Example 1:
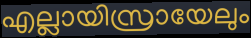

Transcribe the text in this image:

എല്ലായിസ്രായേലും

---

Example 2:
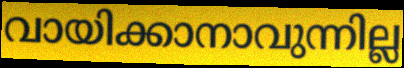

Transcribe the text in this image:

വായിക്കാനാവുന്നില്ല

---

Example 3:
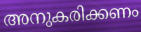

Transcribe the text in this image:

അനുകരിക്കണം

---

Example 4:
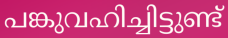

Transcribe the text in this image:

പങ്കുവഹിച്ചിട്ടുണ്ട്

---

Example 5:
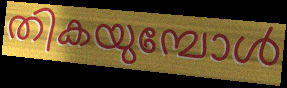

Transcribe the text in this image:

തികയുമ്പോൾ